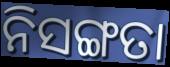
ନିସଙ୍ଗତା